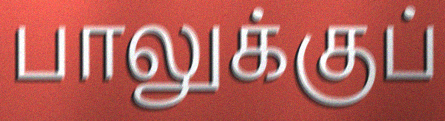
பாலுக்குப்